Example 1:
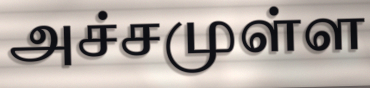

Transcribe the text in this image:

அச்சமுள்ள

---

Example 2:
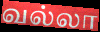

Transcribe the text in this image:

வல்லா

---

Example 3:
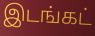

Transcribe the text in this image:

இடங்கட்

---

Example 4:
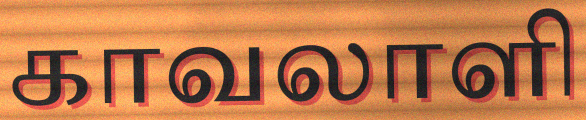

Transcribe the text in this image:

காவலாளி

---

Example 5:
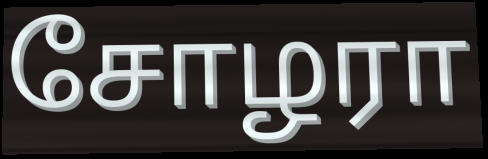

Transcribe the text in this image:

சோழரா